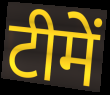
टीमें